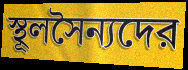
স্থূলসৈন্যদের